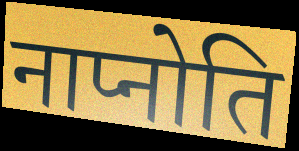
नाप्नोति